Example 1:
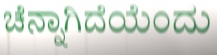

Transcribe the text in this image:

ಚೆನ್ನಾಗಿದೆಯೆಂದು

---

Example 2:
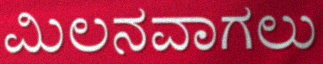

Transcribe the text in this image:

ಮಿಲನವಾಗಲು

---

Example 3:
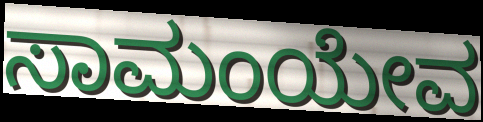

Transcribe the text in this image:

ಸಾಮಂಯೇವ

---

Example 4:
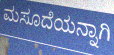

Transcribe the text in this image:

ಮಸೂದೆಯನ್ನಾಗಿ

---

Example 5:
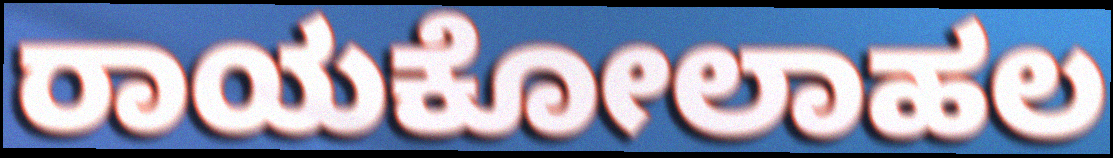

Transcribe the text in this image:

ರಾಯಕೋಲಾಹಲ